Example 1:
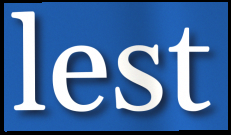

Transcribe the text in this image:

lest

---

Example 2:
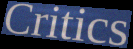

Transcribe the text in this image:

Critics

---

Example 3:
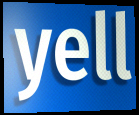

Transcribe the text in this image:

yell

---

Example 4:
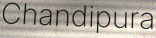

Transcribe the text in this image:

Chandipura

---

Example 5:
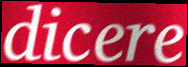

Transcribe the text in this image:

dicere